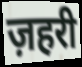
ज़हरी